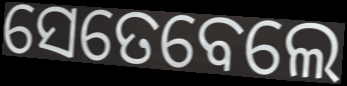
ସେତେବେଲେ